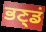
ਭਣ੍ਡਂ